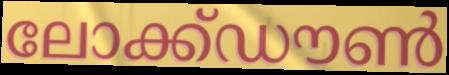
ലോക്ക്ഡൗൺ